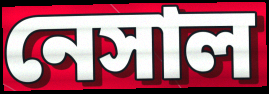
নেসাল